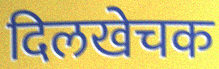
दिलखेचक